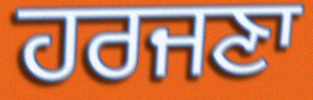
ਹਰਜਣਾ